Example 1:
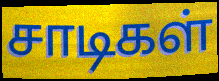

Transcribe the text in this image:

சாடிகள்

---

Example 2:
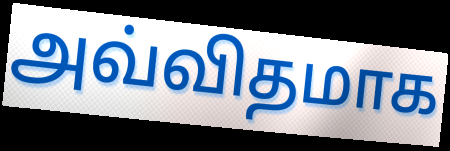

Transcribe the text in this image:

அவ்விதமாக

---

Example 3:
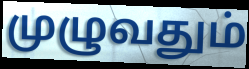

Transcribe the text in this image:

முழுவதும்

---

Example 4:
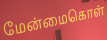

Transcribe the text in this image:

மேன்மைகொள்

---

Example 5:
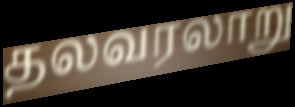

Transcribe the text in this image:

தலவரலாறு